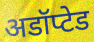
अडॉप्टेड